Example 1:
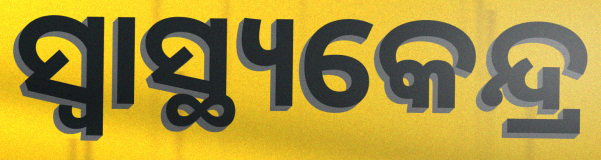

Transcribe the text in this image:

ସ୍ୱାସ୍ଥ୍ୟକେନ୍ଦ୍ର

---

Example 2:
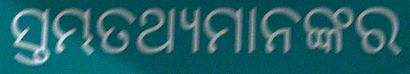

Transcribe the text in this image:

ସ୍ତମ୍ଭତଥ୍ୟମାନଙ୍କର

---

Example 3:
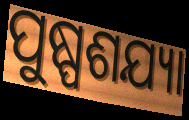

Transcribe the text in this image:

ପୁଷ୍ପଶଯ୍ୟା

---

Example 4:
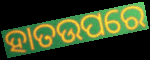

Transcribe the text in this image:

ହାତଉପରେ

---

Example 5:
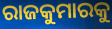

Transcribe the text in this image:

ରାଜକୁମାରକୁ